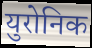
युरोनिक